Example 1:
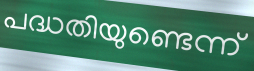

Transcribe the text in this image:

പദ്ധതിയുണ്ടെന്ന്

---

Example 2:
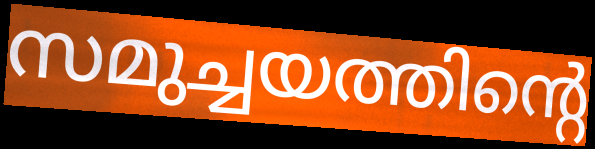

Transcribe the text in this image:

സമുച്ചയത്തിന്റെ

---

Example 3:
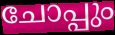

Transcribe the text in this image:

ചോപ്പും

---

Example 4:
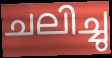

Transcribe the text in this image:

ചലിച്ചു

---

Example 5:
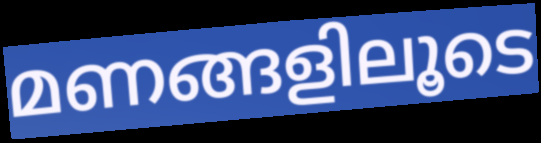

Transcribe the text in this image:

മണങ്ങളിലൂടെ